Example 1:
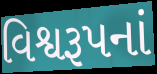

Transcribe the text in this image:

વિશ્વરૂપનાં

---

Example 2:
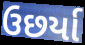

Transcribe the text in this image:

ઉછર્યા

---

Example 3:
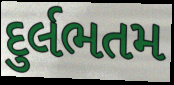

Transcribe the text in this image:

દુર્લભતમ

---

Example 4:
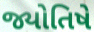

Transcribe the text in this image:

જ્યોતિષે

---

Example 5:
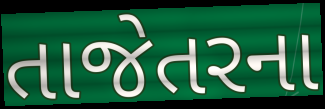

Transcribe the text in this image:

તાજેતરના